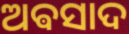
ଅଵସାଦ